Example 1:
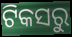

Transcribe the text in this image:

ଟିକସରୁ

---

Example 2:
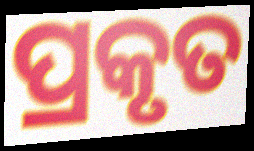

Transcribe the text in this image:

ପ୍ରକୃତ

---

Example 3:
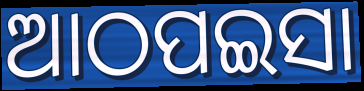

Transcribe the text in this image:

ଆଠପଇସା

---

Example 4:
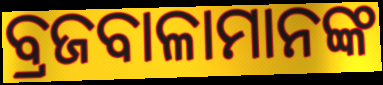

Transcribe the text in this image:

ବ୍ରଜବାଳାମାନଙ୍କ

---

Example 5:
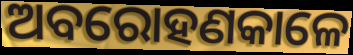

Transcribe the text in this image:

ଅବରୋହଣକାଳେ